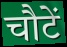
चौटें